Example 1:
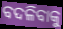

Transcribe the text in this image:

ବଦଳିବାକୁ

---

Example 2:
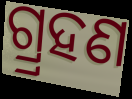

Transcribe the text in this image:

ଗ୍ର୍ରହଣ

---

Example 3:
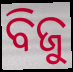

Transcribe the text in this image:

ବିଜୁ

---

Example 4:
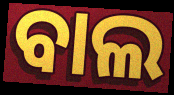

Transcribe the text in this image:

ବାଲ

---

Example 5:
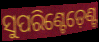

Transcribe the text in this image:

ସୁପରିଣ୍ଟେଡ଼େଣ୍ଟ